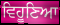
ਵਿਹੂਣਿਆ